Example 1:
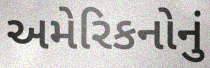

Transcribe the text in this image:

અમેરિકનોનું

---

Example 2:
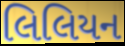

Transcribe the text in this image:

લિલિયન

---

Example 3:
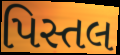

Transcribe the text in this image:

પિસ્તલ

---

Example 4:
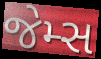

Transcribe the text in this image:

જેમ્સ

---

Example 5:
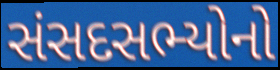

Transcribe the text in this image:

સંસદસભ્યોનો